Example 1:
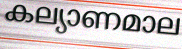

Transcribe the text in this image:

കല്യാണമാല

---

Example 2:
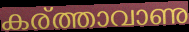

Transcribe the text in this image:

കര്ത്താവാണു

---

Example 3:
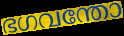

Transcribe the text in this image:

ഭഗവന്തോ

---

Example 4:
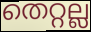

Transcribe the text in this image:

തെറ്റല്ല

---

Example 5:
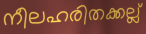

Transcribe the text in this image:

നീലഹരിതക്കല്ല്